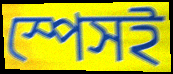
স্পেসই